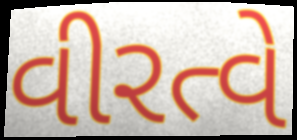
વીરત્વે